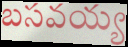
బసవయ్య